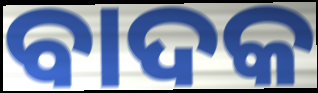
ବାଦକ